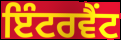
ਇੰਟਰਵੈਂਟ